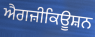
ਐਗਜ਼ੀਕਿਊਸ਼ਨ